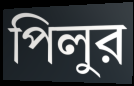
পিলুর